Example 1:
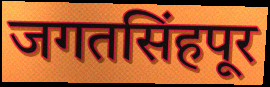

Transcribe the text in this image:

जगतसिंहपूर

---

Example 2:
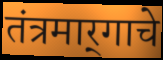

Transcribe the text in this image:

तंत्रमार्गाचे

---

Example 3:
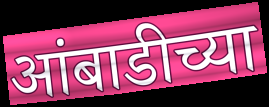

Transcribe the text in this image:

आंबाडीच्या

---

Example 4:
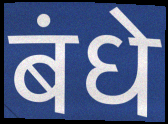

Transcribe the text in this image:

बंधे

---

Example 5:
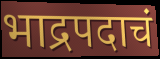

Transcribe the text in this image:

भाद्रपदाचं